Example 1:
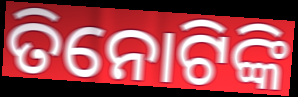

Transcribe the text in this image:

ତିନୋଟିଙ୍କି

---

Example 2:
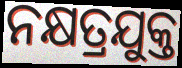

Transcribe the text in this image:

ନକ୍ଷତ୍ରଯୁକ୍ତ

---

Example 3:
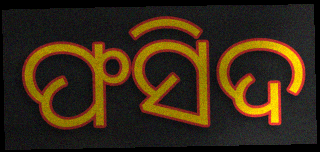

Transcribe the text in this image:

ଫସିଦ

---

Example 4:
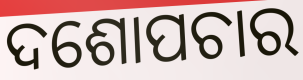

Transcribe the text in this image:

ଦଶୋପଚାର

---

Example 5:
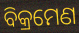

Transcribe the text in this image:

ବିକ୍ରମେଣ